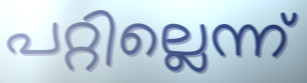
പറ്റില്ലെന്ന്